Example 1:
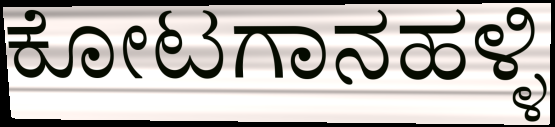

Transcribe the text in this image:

ಕೋಟಗಾನಹಳ್ಳಿ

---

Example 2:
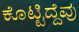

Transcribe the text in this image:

ಕೊಟ್ಟಿದ್ದೆವು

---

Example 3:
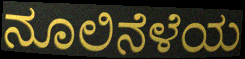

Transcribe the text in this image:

ನೂಲಿನೆಳೆಯ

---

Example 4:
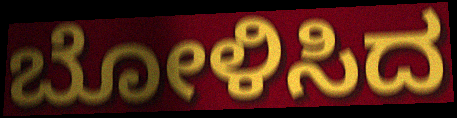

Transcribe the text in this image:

ಬೋಳಿಸಿದ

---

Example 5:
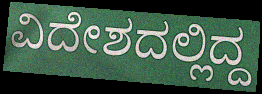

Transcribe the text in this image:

ವಿದೇಶದಲ್ಲಿದ್ದ